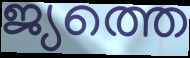
ജ്യത്തെ